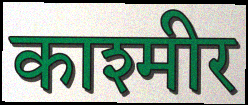
काश्मीर